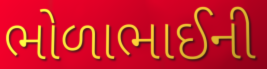
ભોળાભાઈની